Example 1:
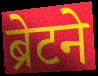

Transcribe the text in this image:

ब्रेटने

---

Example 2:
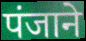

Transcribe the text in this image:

पंजाने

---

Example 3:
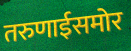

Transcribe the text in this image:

तरुणाईसमोर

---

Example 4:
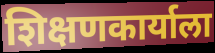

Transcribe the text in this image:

शिक्षणकार्याला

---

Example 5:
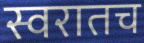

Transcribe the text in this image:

स्वरातच